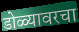
डोळ्यावरचा